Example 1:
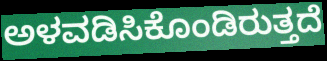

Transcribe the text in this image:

ಅಳವಡಿಸಿಕೊಂಡಿರುತ್ತದೆ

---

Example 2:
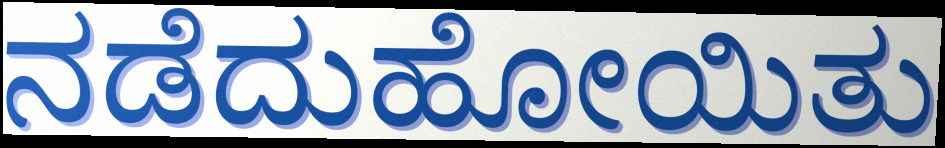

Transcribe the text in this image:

ನಡೆದುಹೋಯಿತು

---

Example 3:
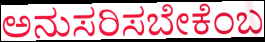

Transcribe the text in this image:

ಅನುಸರಿಸಬೇಕೆಂಬ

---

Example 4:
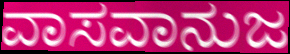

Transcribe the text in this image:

ವಾಸವಾನುಜ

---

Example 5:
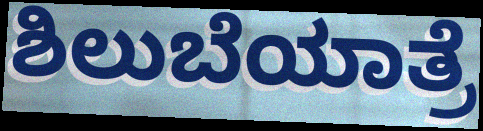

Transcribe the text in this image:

ಶಿಲುಬೆಯಾತ್ರೆ